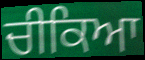
ਚੀਕਿਆ